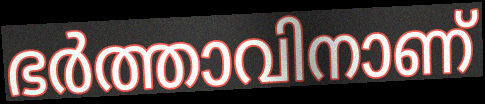
ഭർത്താവിനാണ്